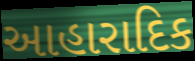
આહારાદિક